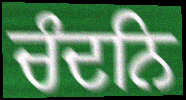
ਚੰਦਨਿ